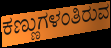
ಕಣ್ಣುಗಳಂತಿರುವ